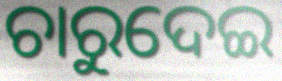
ଚାରୁଦେଇ